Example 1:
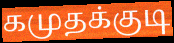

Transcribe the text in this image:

கமுதக்குடி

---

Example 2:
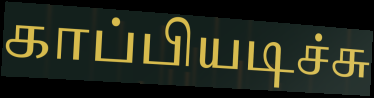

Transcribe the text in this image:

காப்பியடிச்சு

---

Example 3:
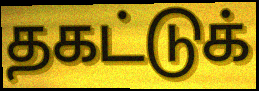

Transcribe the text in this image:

தகட்டுக்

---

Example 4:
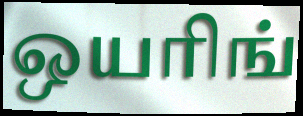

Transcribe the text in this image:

ஒயரிங்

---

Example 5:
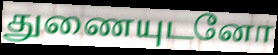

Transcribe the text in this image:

துணையுடனோ